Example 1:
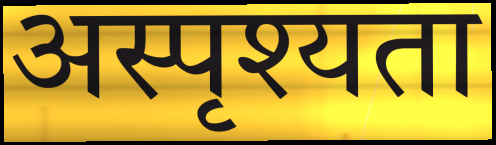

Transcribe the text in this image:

अस्पृश्यता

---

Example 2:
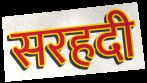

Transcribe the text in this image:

सरहदी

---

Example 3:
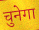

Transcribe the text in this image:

चुनेगा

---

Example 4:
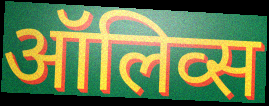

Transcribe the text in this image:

ऑलिव्स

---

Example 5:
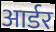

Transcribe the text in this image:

आर्डर